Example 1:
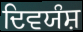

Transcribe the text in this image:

ਦਿਵਯੰਸ਼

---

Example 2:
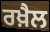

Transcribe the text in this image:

ਰਖ਼ੈਲ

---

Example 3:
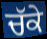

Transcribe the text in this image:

ਚੱਕੇ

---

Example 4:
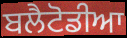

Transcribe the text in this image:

ਬਲੈਟੋਡੀਆ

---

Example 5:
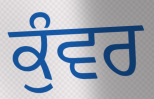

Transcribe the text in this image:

ਕੁੰਵਰ